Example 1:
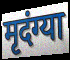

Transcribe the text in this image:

मृदंग्या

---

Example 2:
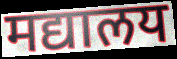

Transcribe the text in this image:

मद्यालय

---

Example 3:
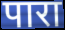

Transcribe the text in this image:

पारा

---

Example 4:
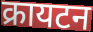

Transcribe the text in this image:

क्रायटन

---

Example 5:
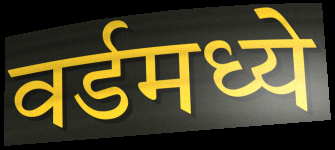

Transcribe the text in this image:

वर्डमध्ये